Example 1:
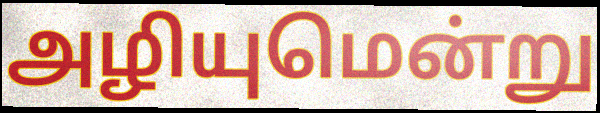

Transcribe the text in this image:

அழியுமென்று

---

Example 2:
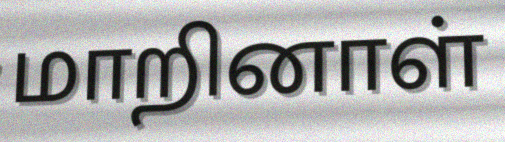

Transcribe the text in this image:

மாறினாள்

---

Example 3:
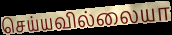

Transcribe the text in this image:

செய்யவில்லையா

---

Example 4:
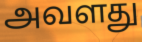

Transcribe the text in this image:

அவளது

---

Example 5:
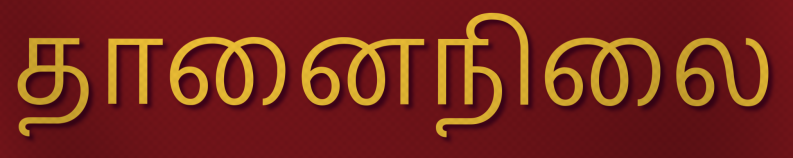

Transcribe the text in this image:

தானைநிலை